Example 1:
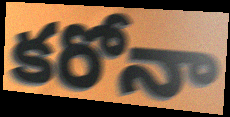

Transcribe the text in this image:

కరోనా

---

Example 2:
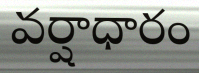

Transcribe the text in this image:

వర్షాధారం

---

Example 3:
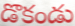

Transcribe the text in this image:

డొకండు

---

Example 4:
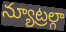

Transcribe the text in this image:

న్యూట్రల్గా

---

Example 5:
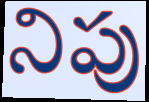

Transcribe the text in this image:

నిపు